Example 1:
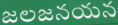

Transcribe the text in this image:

జలజనయన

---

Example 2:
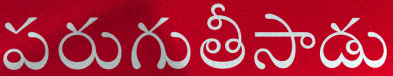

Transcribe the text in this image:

పరుగుతీసాడు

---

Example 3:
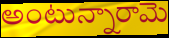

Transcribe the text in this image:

అంటున్నారామె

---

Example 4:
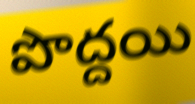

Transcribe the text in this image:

పొద్దయి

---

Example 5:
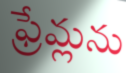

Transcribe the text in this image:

ఫ్రేమ్లను